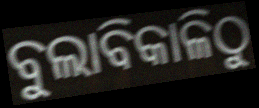
ବୁଲାବିକାଳିଠୁ